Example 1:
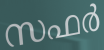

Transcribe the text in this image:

സഫർ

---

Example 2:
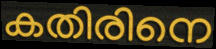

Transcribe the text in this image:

കതിരിനെ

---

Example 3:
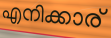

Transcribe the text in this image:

എനിക്കാര്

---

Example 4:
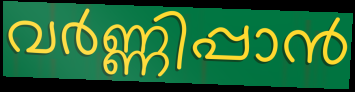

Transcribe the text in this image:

വർണ്ണിപ്പാൻ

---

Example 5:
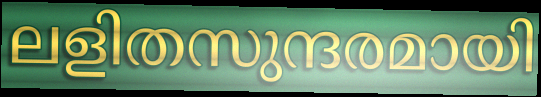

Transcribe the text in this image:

ലളിതസുന്ദരമായി